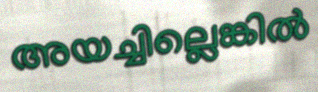
അയച്ചില്ലെങ്കിൽ